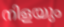
നിളയും